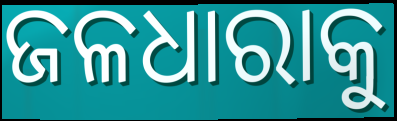
ଜଳଧାରାକୁ